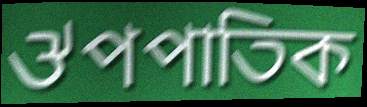
ঔপপাতিক